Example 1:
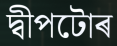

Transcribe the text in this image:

দ্বীপটোৰ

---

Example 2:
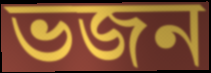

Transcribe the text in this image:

ভজন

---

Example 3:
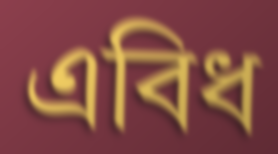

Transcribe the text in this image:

এবিধ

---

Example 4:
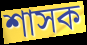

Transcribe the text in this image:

শাসক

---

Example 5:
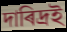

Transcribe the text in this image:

দাৰিদ্ৰই